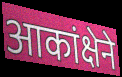
आकांक्षेने